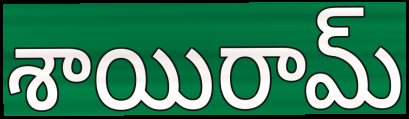
శాయిరామ్